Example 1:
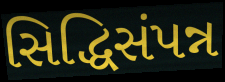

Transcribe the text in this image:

સિદ્ધિસંપન્ન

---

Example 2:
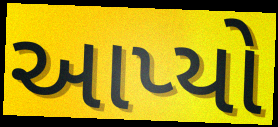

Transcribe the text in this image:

આપ્યો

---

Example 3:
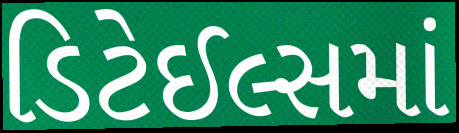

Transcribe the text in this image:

ડિટેઈલ્સમાં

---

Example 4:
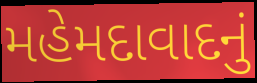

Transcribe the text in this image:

મહેમદાવાદનું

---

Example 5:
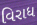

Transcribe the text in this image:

વિરાધ